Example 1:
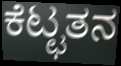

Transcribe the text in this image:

ಕೆಟ್ಟತನ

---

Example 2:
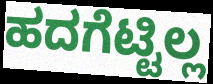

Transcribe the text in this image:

ಹದಗೆಟ್ಟಿಲ್ಲ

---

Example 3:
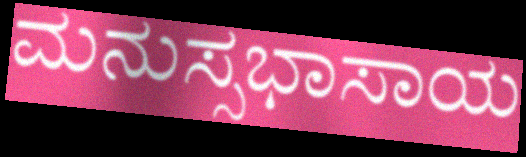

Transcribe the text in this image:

ಮನುಸ್ಸಭಾಸಾಯ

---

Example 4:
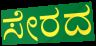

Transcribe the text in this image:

ಸೇರದ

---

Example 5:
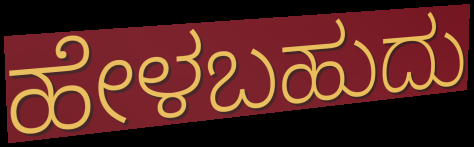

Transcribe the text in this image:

ಹೇಳಬಹುದು